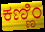
ಕಣ್ಣಿಂ